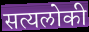
सत्यलोकी